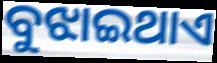
ବୁଝାଇଥାଏ